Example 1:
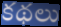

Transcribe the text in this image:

కథలు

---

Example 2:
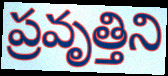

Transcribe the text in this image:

ప్రవృత్తిని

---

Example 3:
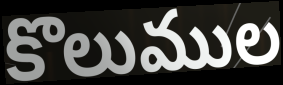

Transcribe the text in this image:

కొలుముల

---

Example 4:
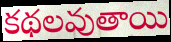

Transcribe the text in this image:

కథలవుతాయి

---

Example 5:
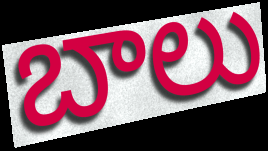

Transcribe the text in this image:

బాలు